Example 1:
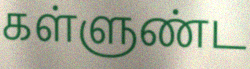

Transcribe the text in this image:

கள்ளுண்ட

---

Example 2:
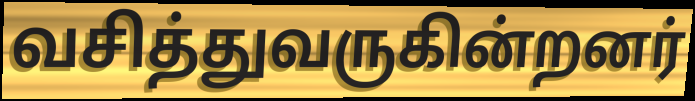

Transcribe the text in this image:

வசித்துவருகின்றனர்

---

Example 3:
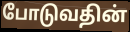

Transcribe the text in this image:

போடுவதின்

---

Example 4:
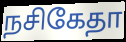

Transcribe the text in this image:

நசிகேதா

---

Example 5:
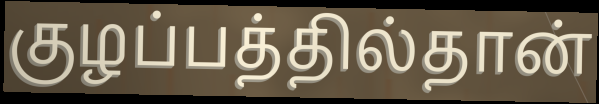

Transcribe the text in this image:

குழப்பத்தில்தான்